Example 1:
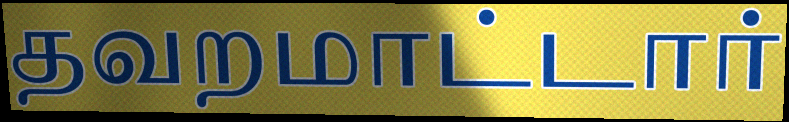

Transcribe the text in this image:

தவறமாட்டார்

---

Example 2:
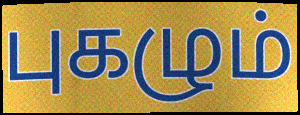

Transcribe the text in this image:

புகழும்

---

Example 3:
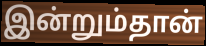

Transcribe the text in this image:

இன்றும்தான்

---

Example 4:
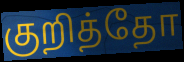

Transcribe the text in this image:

குறித்தோ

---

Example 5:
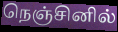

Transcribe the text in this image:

நெஞ்சினில்